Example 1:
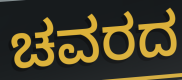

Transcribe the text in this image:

ಚವರದ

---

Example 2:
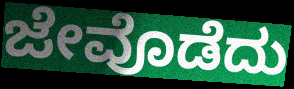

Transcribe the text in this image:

ಜೇವೊಡೆದು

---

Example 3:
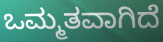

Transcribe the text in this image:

ಒಮ್ಮತವಾಗಿದೆ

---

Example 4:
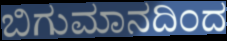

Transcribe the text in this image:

ಬಿಗುಮಾನದಿಂದ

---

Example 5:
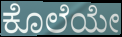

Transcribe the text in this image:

ಕೊಲೆಯೇ